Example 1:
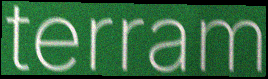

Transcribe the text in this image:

terram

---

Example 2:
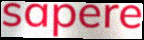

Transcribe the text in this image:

sapere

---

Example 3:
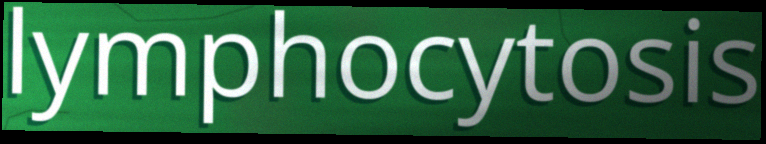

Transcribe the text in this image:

lymphocytosis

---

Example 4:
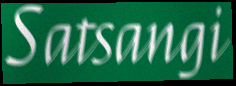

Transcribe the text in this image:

Satsangi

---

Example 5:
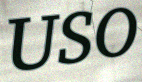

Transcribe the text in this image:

USO